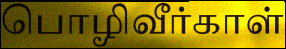
பொழிவீர்காள்